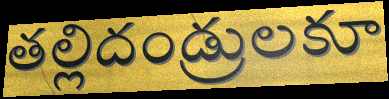
తల్లిదండ్రులకూ